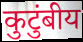
कुटुंबीय